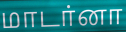
மாடர்னா